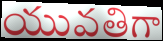
యువతిగా